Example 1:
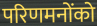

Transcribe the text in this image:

परिणमनोंको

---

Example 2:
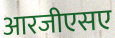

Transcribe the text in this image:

आरजीएसए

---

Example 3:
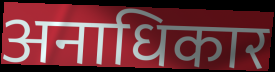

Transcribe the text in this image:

अनाधिकार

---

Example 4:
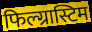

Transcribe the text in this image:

फिल्ग्रास्टिम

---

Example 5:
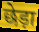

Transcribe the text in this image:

छेड़ा